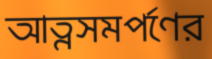
আত্নসমর্পণের